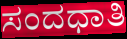
ಸಂದಧಾತಿ